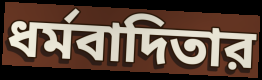
ধর্মবাদিতার